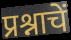
प्रश्नाचें